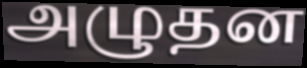
அழுதன